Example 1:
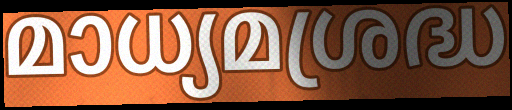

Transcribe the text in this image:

മാധ്യമശ്രദ്ധ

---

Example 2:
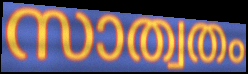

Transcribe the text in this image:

സാത്വതം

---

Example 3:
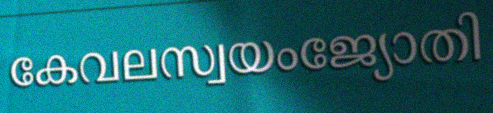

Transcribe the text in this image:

കേവലസ്വയംജ്യോതി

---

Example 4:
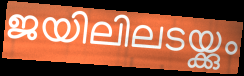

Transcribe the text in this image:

ജയിലിലടയ്ക്കും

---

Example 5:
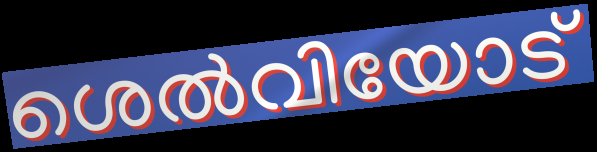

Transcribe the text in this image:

ശെൽവിയോട്